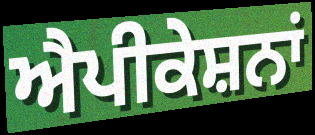
ਐਪੀਕੇਸ਼ਨਾਂ